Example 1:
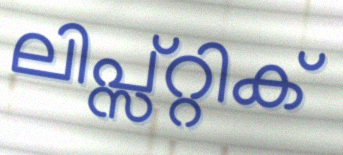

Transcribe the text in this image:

ലിപ്സ്റ്റിക്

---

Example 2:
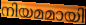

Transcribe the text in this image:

നിയമമായി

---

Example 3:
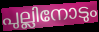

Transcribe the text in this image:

പുല്ലിനോടും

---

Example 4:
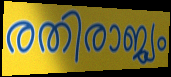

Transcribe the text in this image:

രതിരാജ്യം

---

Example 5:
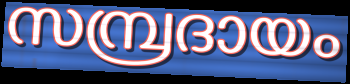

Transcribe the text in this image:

സമ്പ്രദായം